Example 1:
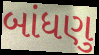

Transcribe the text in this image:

બાંધણુ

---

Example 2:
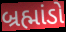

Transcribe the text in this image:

બ્રહ્માંડો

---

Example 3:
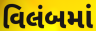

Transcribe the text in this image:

વિલંબમાં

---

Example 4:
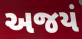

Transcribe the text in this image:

અજયં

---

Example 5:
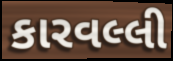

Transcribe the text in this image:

કારવલ્લી